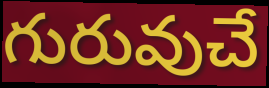
గురువుచే